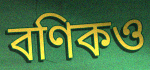
বণিকও